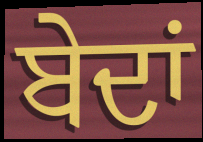
ਬੇਦਾਂ